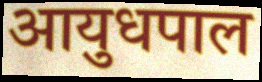
आयुधपाल